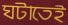
ঘটাতেই